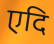
एदि